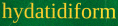
hydatidiform